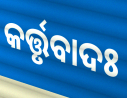
କର୍ତ୍ତୃବାଦଃ